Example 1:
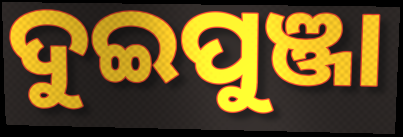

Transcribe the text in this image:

ଦୁଇପୁଞ୍ଜା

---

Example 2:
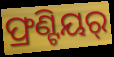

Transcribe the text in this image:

ଫ୍ରଣ୍ଟିୟର୍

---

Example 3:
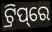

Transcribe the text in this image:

ଟ୍ରିପ୍‌ରେ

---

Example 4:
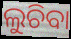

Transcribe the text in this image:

ଲୁଚିବା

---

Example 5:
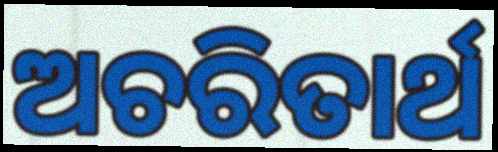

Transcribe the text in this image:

ଅଚରିତାର୍ଥ